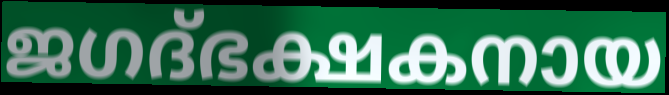
ജഗദ്ഭക്ഷകനായ